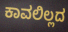
ಕಾವಲಿಲ್ಲದ